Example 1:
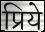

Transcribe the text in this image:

प्रिये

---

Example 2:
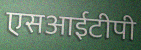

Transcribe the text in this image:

एसआईटीपी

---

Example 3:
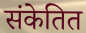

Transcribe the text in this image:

संकेतित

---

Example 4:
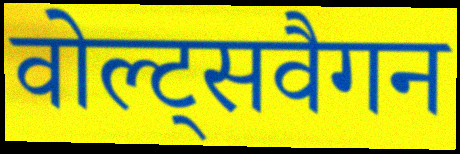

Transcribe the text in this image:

वोल्ट्सवैगन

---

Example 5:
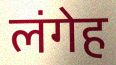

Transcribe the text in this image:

लंगेह